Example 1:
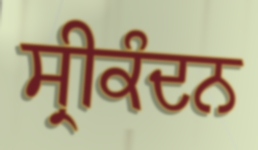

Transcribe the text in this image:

ਸ੍ਰੀਕੰਦਨ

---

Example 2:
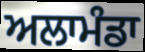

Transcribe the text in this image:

ਅਲਾਮੰਡਾ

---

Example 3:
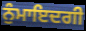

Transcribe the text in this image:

ਨੁੰਮਾਇਦਗੀ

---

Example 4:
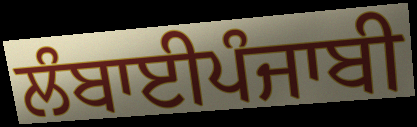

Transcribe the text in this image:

ਲੰਬਾਈਪੰਜਾਬੀ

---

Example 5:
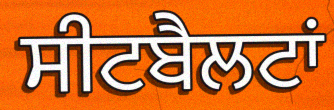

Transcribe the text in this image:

ਸੀਟਬੈਲਟਾਂ